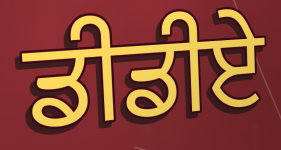
ਡੀਡੀਏ